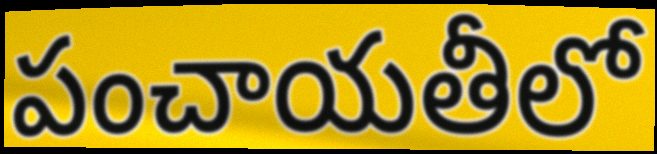
పంచాయతీలో